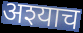
अश्याच